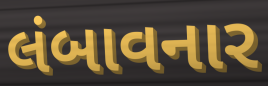
લંબાવનાર